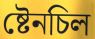
ষ্টেনচিল